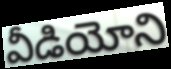
వీడియోని